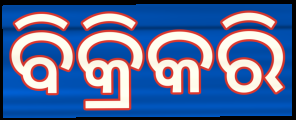
ବିକ୍ରିକରି